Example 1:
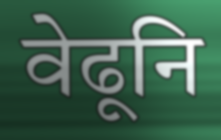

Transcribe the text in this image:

वेढूनि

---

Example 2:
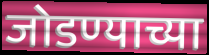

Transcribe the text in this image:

जोडण्याच्या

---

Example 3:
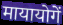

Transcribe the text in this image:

मायायोगें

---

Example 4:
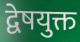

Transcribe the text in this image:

द्वेषयुक्त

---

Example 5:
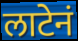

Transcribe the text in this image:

लाटेनं